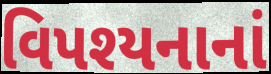
વિપશ્યનાનાં